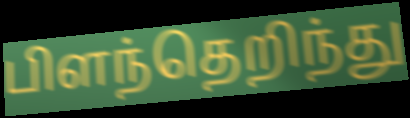
பிளந்தெறிந்து